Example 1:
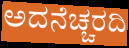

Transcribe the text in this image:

ಅದನೆಚ್ಚರದಿ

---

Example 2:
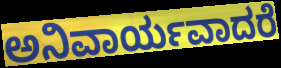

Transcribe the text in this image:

ಅನಿವಾರ್ಯವಾದರೆ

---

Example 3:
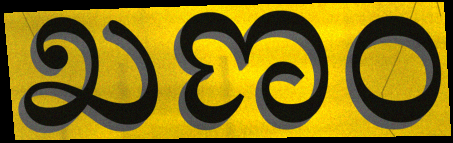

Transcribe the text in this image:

ಖಣಂ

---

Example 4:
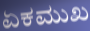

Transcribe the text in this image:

ಏಕಮುಖ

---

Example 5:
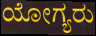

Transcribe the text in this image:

ಯೋಗ್ಯರು